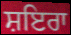
ਸ਼ਇਰਾ